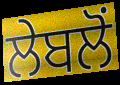
ਲੇਬਲੋਂ